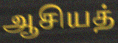
ஆசியத்